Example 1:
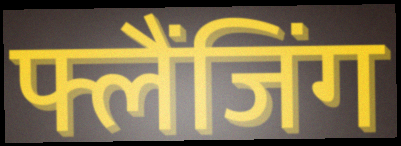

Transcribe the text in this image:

फ्लैंजिंग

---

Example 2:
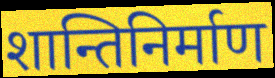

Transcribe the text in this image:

शान्तिनिर्माण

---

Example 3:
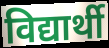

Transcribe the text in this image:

विद्यार्थी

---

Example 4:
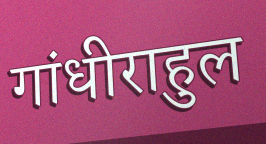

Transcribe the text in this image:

गांधीराहुल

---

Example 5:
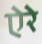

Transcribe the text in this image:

ऐरे